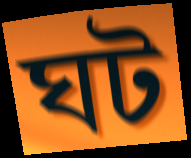
ঘট